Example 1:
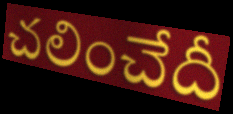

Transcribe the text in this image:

చలించేదీ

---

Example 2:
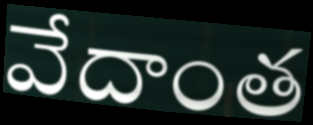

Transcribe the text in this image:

వేదాంత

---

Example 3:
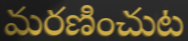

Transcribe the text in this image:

మరణించుట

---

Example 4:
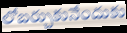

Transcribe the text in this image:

లోబర్చుకునేందుకు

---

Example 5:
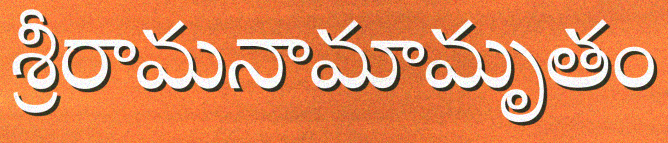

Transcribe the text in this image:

శ్రీరామనామామృతం